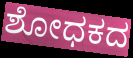
ಶೋಧಕದ